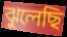
ঝুলেছি